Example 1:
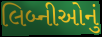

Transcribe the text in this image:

લિબ્નીઓનું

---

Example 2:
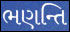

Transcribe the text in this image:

ભણન્તિ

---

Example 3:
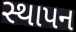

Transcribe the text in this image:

સ્થાપન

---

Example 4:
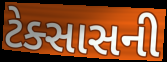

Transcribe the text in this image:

ટેક્સાસની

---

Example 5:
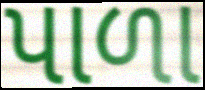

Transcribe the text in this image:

પાળા